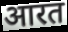
आरत